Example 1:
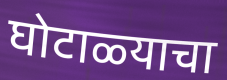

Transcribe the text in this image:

घोटाळ्याचा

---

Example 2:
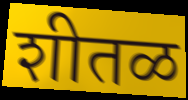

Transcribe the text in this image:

शीतळ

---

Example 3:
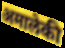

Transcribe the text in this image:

अमालेकी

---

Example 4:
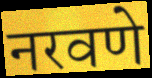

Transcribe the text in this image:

नरवणे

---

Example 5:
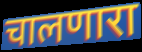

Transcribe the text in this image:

चालणारा